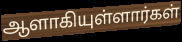
ஆளாகியுள்ளார்கள்